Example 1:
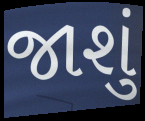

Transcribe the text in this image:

જાશું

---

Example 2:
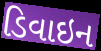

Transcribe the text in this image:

ડિવાઇન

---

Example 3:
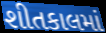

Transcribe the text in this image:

શીતકાલમાં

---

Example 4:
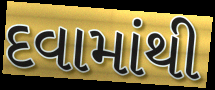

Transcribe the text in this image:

દવામાંથી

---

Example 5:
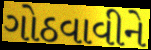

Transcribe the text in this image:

ગોઠવાવીને